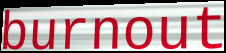
burnout